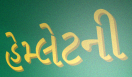
હેમ્લેટની